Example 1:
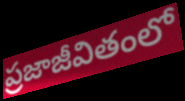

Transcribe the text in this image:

ప్రజాజీవితంలో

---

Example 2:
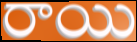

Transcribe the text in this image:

రాయి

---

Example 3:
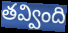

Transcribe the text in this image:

తవ్వింది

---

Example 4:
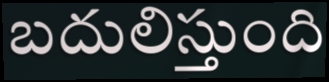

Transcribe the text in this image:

బదులిస్తుంది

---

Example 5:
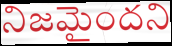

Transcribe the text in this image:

నిజమైందని